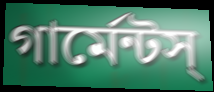
গার্মেন্টস্